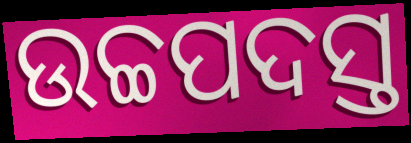
ଉଚ୍ଚପଦସ୍ତ